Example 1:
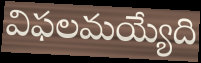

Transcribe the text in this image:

విఫలమయ్యేది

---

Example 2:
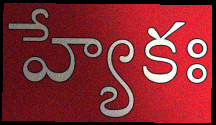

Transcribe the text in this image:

హ్యేకః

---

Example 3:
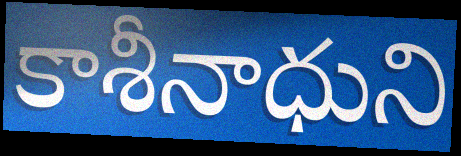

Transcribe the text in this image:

కాశీనాధుని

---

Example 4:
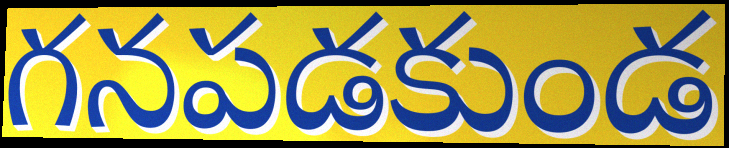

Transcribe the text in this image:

గనపడకుండ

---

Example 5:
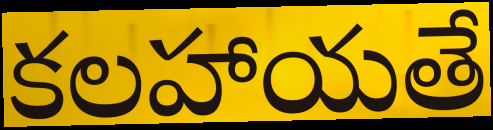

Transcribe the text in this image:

కలహాయతే